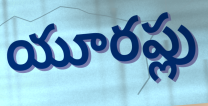
యూరప్లు